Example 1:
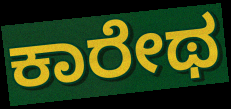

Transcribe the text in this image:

ಕಾರೇಥ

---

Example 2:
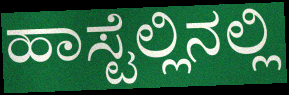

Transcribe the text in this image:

ಹಾಸ್ಟೆಲ್ಲಿನಲ್ಲಿ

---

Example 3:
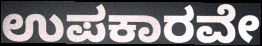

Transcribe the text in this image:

ಉಪಕಾರವೇ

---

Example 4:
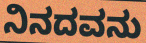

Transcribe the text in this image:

ನಿನದವನು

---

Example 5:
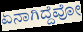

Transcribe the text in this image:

ಏನಾಗಿದ್ದೆವೋ